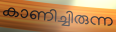
കാണിച്ചിരുന്ന